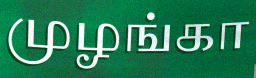
முழங்கா